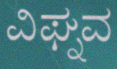
ವಿಘ್ನವ